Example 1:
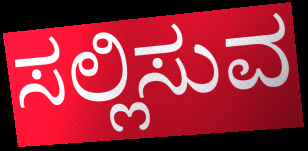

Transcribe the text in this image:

ಸಲ್ಲಿಸುವ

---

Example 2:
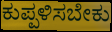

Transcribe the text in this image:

ಕುಪ್ಪಳಿಸಬೇಕು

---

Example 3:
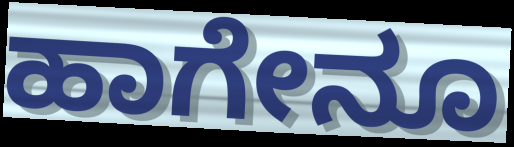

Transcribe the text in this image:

ಹಾಗೇನೂ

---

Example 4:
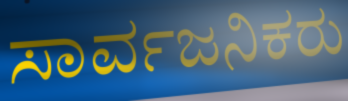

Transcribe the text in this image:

ಸಾರ್ವಜನಿಕರು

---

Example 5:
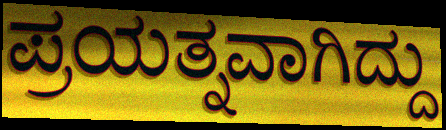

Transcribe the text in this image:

ಪ್ರಯತ್ನವಾಗಿದ್ದು